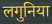
लगुनिया